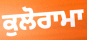
ਕੁਲੋਰਾਮਾ